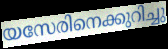
യസേരിനെക്കുറിച്ചു